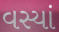
વસ્યાં